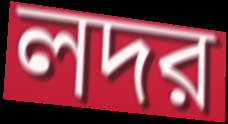
লদর